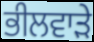
ਭੀਲਵਾੜੇ